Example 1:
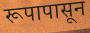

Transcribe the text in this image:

रूपापासून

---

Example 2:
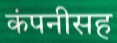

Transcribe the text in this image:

कंपनीसह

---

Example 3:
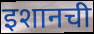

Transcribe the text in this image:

इशानची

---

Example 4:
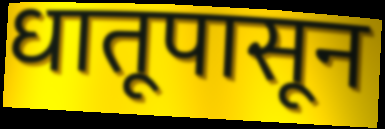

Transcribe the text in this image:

धातूपासून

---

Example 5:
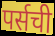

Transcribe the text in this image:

पर्सची